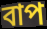
বাপ